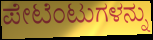
ಪೇಟೆಂಟುಗಳನ್ನು